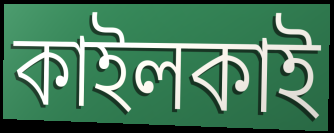
কাইলকাই